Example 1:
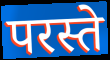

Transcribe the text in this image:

परस्ते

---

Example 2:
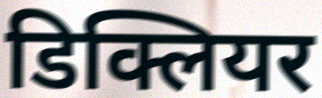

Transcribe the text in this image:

डिक्लियर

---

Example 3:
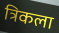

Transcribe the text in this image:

त्रिकला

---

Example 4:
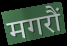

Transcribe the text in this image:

मगरौं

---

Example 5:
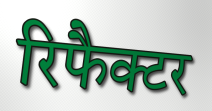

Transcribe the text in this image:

रिफैक्टर